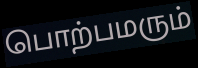
பொற்பமரும்